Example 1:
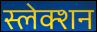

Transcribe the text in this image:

स्लेक्शन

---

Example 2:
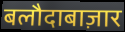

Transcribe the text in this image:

बलौदाबाज़ार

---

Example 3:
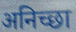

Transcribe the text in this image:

अनिच्छा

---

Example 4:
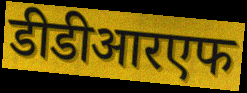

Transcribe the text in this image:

डीडीआरएफ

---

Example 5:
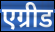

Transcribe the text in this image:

एग्रीड